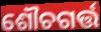
ଶୌଚଗର୍ତ୍ତ